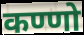
कण्णो